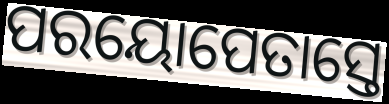
ପରୟୋପେତାସ୍ତେ